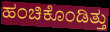
ಹಂಚಿಕೊಂಡಿತ್ತು